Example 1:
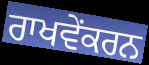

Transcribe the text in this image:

ਰਾਖਵੇਂਕਰਨ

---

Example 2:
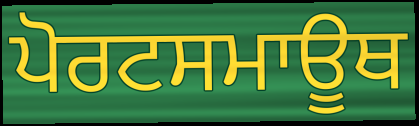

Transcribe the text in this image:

ਪੋਰਟਸਮਾਊਥ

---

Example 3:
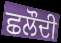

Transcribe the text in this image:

ਛਲੌਦੀ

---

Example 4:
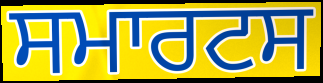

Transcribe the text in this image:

ਸਮਾਰਟਸ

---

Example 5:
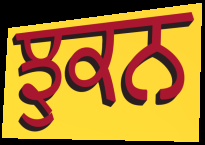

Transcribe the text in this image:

ਝੁਕਨ